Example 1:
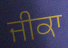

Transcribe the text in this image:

ਜੀਕਾ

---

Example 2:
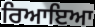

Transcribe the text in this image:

ਰਿਆਇਆ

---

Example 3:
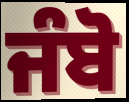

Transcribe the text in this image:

ਜੰਬੋ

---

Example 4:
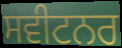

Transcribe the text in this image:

ਸਵੀਟਨਰ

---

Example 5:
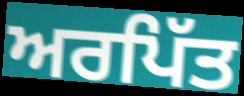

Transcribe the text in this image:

ਅਰਪਿੱਤ